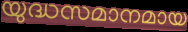
യുദ്ധസമാനമായ